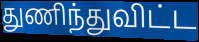
துணிந்துவிட்ட